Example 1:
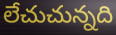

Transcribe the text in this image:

లేచుచున్నది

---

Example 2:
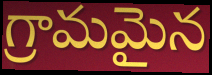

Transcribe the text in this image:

గ్రామమైన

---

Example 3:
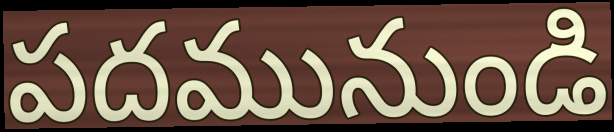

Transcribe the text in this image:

పదమునుండి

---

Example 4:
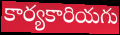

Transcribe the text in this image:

కార్యకారియగు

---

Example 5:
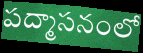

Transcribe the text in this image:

పద్మాసనంలో